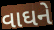
વાઘને